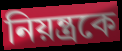
নিয়ন্ত্রকে